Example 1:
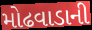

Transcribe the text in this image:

મોઢવાડાની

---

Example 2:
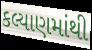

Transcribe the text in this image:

કલ્યાણમાંથી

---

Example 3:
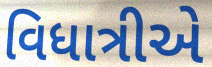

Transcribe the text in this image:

વિધાત્રીએ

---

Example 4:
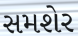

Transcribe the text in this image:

સમશેર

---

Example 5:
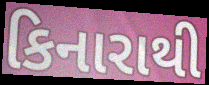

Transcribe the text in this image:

કિનારાથી